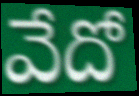
వేదో